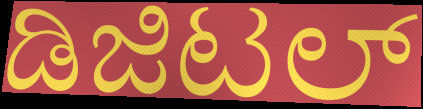
ಡಿಜಿಟಲ್